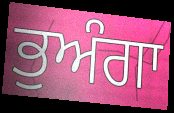
ਭੁਅੰਗਾ